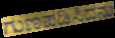
ಗುಣಪಡಿಸಿದನು